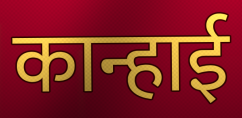
कान्हाई